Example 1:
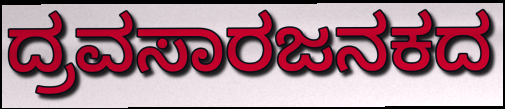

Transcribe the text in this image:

ದ್ರವಸಾರಜನಕದ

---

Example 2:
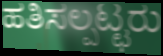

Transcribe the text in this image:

ಹತಿಸಲ್ಪಟ್ಟರು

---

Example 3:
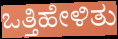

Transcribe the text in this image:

ಒತ್ತಿಹೇಳಿತು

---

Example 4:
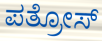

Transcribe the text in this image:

ಪತ್ರೋಸ್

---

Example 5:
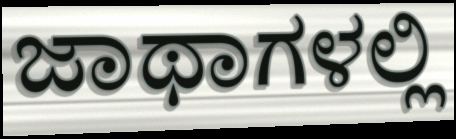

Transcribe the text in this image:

ಜಾಥಾಗಳಲ್ಲಿ